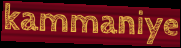
kammaniye